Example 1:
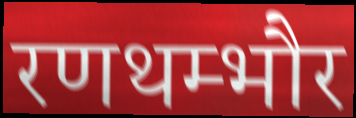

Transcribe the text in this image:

रणथम्भौर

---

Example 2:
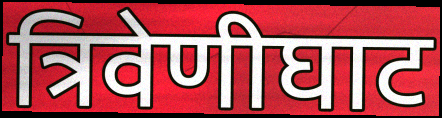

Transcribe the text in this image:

त्रिवेणीघाट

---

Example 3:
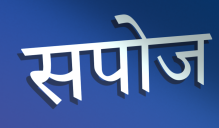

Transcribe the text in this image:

सपोज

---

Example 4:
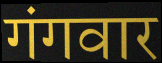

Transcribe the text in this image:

गंगवार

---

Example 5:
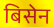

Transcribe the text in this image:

बिसेन